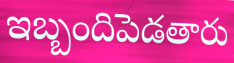
ఇబ్బందిపెడతారు